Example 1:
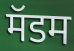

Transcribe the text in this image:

मॅडम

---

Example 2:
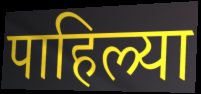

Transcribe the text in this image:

पाहिल्या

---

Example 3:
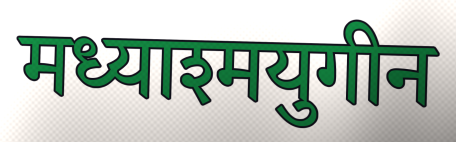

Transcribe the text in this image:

मध्याश्मयुगीन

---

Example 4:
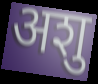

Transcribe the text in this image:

अशु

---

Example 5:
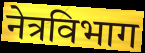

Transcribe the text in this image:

नेत्रविभाग